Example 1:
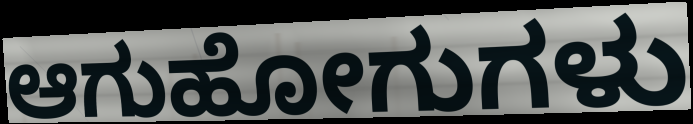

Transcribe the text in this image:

ಆಗುಹೋಗುಗಳು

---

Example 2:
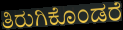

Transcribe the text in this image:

ತಿರುಗಿಕೊಂಡರೆ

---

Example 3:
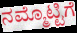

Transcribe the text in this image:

ನಮ್ಮೊಟ್ಟಿಗೆ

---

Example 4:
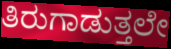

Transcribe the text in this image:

ತಿರುಗಾಡುತ್ತಲೇ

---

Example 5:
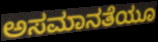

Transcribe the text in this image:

ಅಸಮಾನತೆಯೂ